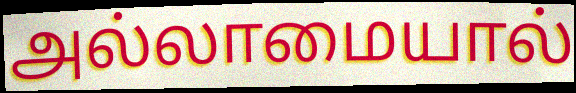
அல்லாமையால்